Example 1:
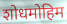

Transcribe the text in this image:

शोधमोहिम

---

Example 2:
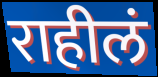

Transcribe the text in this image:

राहीलं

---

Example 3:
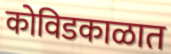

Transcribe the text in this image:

कोविडकाळात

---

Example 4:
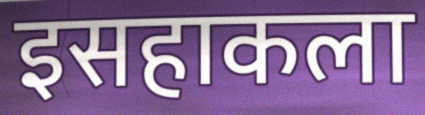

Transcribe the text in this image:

इसहाकला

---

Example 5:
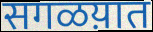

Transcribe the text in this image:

सगळय़ात